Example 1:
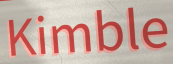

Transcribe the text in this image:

Kimble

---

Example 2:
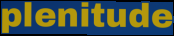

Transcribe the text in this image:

plenitude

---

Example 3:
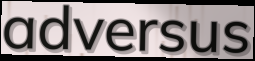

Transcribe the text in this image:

adversus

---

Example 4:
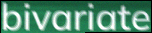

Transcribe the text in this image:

bivariate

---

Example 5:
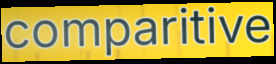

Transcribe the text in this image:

comparitive